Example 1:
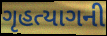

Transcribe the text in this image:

ગૃહત્યાગની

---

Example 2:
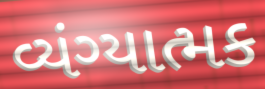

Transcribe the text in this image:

વ્યંગ્યાત્મક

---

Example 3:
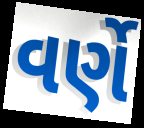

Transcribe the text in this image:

વર્ણે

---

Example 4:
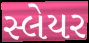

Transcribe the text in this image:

સ્લેયર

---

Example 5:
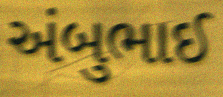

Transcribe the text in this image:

અંબુભાઈ